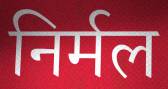
निर्मल